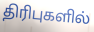
திரிபுகளில்